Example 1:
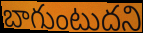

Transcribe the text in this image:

బాగుంటుదని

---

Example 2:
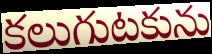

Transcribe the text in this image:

కలుగుటకును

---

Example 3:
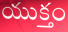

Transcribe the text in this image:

యుక్తం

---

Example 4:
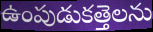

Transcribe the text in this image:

ఉంపుడుకత్తెలను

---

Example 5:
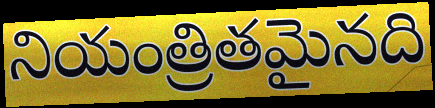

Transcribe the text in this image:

నియంత్రితమైనది